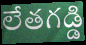
లేతగడ్డి